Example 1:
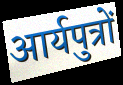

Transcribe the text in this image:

आर्यपुत्रों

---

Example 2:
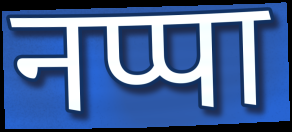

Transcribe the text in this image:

नप्पा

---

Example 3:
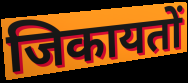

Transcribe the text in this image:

जिकायतों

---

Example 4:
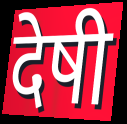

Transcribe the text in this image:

देषी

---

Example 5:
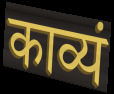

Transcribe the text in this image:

काव्यं